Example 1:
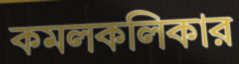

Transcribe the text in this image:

কমলকলিকার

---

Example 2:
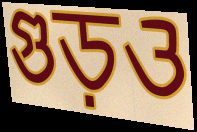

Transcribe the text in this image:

গুড়ও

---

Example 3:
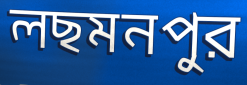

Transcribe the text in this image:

লছমনপুর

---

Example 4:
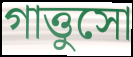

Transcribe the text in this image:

গাত্তুসো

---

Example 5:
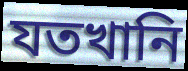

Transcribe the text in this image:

যতখানি